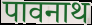
पावनाथ